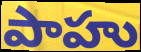
పాహు